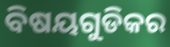
ବିଷୟଗୁଡିକର